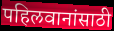
पहिलवानांसाठी